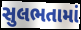
સુલભતામાં